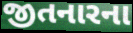
જીતનારના